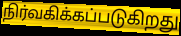
நிர்வகிக்கப்படுகிறது